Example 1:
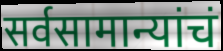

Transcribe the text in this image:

सर्वसामान्यांचं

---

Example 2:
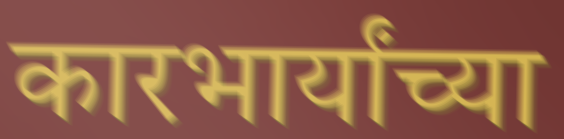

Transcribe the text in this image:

कारभार्यांच्या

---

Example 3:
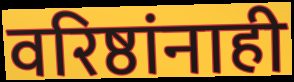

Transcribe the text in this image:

वरिष्ठांनाही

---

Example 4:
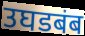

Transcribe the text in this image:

उघडबंब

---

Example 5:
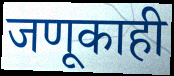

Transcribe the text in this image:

जणूकाही